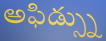
అఫిడ్స్ను